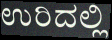
ಉರಿದಲ್ಲಿ